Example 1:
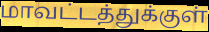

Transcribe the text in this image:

மாவட்டத்துக்குள்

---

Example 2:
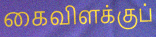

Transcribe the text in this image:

கைவிளக்குப்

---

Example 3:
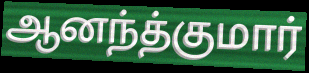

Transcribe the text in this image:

ஆனந்த்குமார்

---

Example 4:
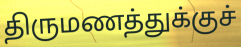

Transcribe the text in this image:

திருமணத்துக்குச்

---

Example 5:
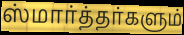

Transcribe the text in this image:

ஸ்மார்த்தர்களும்